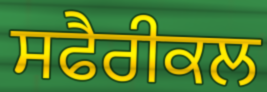
ਸਫੈਰੀਕਲ